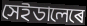
সেইডালেৰে